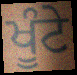
ਖੂੰਟੇ